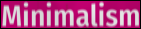
Minimalism